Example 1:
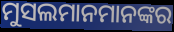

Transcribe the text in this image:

ମୁସଲମାନମାନଙ୍କର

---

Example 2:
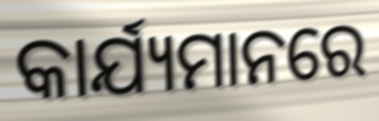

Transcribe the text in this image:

କାର୍ଯ୍ୟମାନରେ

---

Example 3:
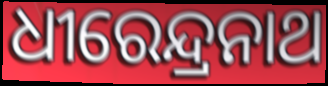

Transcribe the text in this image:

ଧୀରେନ୍ଦ୍ରନାଥ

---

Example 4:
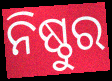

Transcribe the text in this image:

ନିଷ୍ଠୁର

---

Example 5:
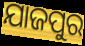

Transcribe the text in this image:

ଯାଜପୁର